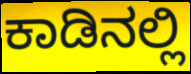
ಕಾಡಿನಲ್ಲಿ